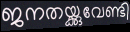
ജനതയ്ക്കുവേണ്ടി